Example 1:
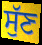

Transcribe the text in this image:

ਸੁੱਣ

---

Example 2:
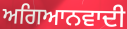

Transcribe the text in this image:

ਅਗਿਆਨਵਾਦੀ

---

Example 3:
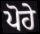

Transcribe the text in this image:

ਪੋਹੇ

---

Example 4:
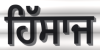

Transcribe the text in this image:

ਹਿੱਸਾਜ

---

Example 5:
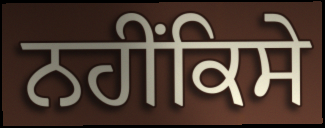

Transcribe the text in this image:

ਨਹੀਂਕਿਸੇ